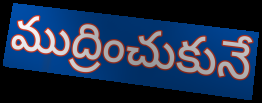
ముద్రించుకునే